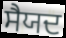
ਸੈਯਦ